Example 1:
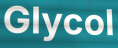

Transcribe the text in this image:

Glycol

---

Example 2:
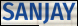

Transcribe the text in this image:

SANJAY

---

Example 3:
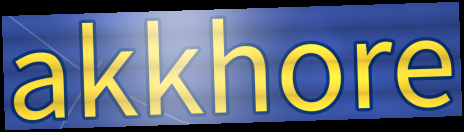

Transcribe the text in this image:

akkhore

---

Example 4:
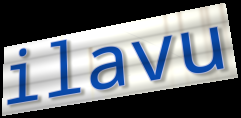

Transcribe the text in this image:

ilavu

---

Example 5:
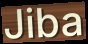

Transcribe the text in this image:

Jiba